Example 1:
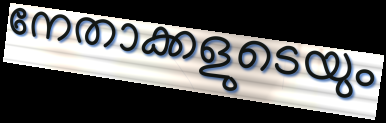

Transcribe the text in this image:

നേതാക്കളുടെയും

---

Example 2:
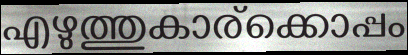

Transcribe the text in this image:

എഴുത്തുകാര്ക്കൊപ്പം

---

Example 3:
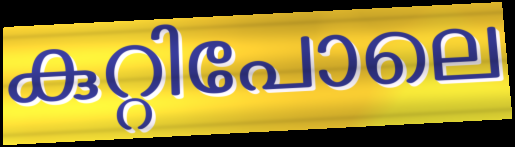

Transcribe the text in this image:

കുറ്റിപോലെ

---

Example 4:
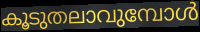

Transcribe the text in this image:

കൂടുതലാവുമ്പോൾ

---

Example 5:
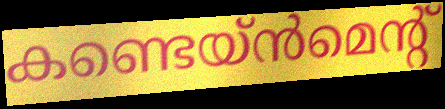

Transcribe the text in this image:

കണ്ടെയ്ൻമെന്റ്